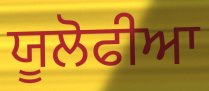
ਯੂਲੋਫੀਆ